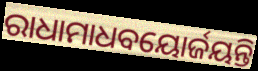
ରାଧାମାଧବୟୋର୍ଜୟନ୍ତି